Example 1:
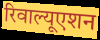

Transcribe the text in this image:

रिवाल्यूएशन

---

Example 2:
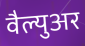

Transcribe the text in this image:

वैल्युअर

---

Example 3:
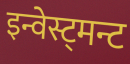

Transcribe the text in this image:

इन्वेस्ट्मन्ट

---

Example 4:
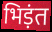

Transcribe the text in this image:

भिड़ंत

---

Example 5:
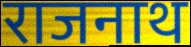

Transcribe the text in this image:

राजनाथ